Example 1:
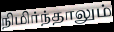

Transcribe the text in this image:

நிமிர்ந்தாலும்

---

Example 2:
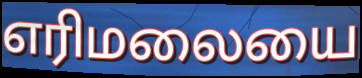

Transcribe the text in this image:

எரிமலையை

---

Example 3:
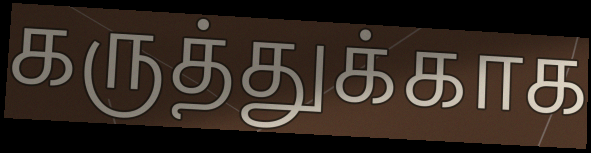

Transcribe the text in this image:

கருத்துக்காக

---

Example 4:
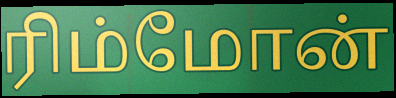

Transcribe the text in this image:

ரிம்மோன்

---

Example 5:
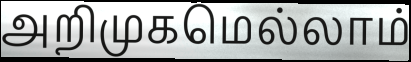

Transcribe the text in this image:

அறிமுகமெல்லாம்